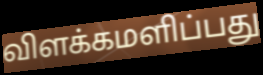
விளக்கமளிப்பது